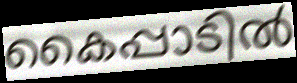
കൈപ്പാടിൽ